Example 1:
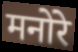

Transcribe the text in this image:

मनोरे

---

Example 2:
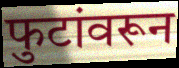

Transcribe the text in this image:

फुटांवरून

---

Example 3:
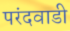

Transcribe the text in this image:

परंदवाडी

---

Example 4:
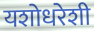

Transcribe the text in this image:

यशोधरेशी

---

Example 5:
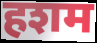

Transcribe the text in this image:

हशम